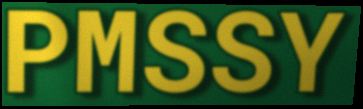
PMSSY